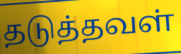
தடுத்தவள்